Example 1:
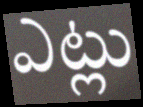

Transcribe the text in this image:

ఎట్లు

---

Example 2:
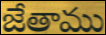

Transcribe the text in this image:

జేతాము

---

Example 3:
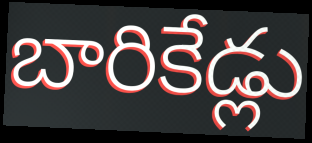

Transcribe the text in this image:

బారికేడ్లు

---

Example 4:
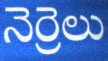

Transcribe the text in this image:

నెర్రెలు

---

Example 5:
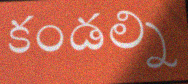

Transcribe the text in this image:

కండల్ని